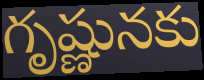
గృష్ణునకు